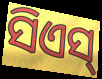
ସିଏସ୍